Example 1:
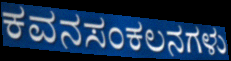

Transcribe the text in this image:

ಕವನಸಂಕಲನಗಳು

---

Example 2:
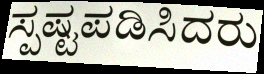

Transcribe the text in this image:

ಸ್ಪಷ್ಟಪಡಿಸಿದರು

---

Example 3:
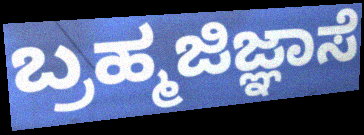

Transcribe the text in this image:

ಬ್ರಹ್ಮಜಿಜ್ಞಾಸೆ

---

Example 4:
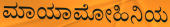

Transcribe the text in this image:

ಮಾಯಾಮೋಹಿನಿಯ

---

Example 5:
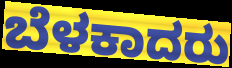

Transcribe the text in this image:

ಬೆಳಕಾದರು